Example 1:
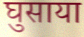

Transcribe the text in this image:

घुसाया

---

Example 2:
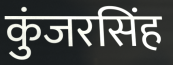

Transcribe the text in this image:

कुंजरसिंह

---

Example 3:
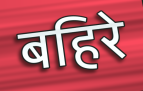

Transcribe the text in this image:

बहिरे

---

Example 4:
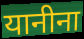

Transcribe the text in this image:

यानीना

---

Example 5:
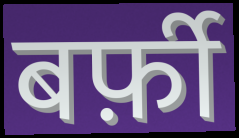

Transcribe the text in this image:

बर्फ़ी